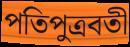
পতিপুত্রবতী